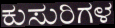
ಕುಸುರಿಗಳ